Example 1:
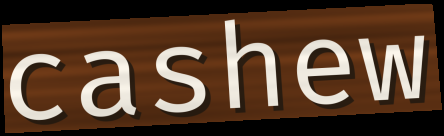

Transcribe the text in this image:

cashew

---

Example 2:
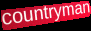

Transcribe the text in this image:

countryman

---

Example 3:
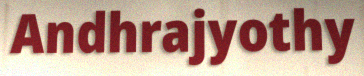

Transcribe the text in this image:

Andhrajyothy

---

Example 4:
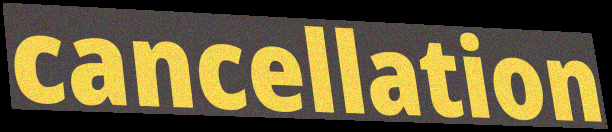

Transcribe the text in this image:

cancellation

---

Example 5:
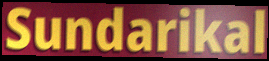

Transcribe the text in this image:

Sundarikal